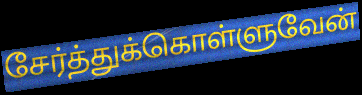
சேர்த்துக்கொள்ளுவேன்